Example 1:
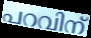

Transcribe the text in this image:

പറവിന്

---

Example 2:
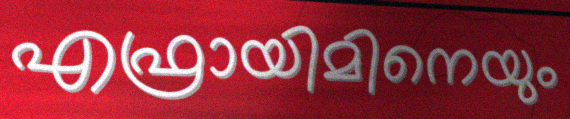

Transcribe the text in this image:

എഫ്രായിമിനെയും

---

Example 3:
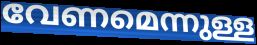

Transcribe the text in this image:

വേണമെന്നുള്ള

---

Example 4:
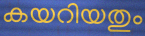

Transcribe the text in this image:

കയറിയതും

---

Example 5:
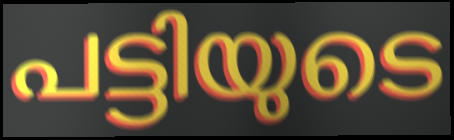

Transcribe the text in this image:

പട്ടിയുടെ